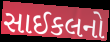
સાઈકલનો